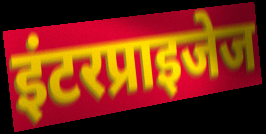
इंटरप्राइजेज